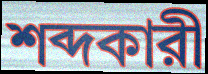
শব্দকারী